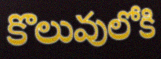
కొలువులోకి